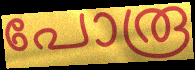
പോരൂ